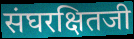
संघरक्षितजी